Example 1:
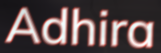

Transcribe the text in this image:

Adhira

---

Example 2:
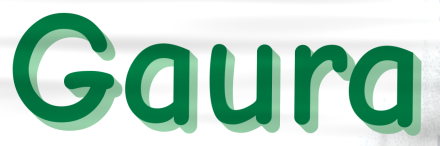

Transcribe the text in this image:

Gaura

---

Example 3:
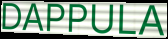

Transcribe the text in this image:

DAPPULA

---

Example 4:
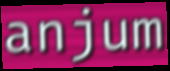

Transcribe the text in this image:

anjum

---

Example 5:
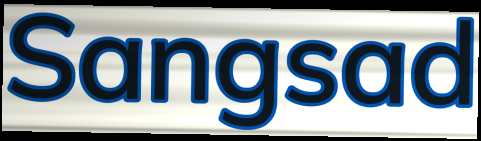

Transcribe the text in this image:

Sangsad